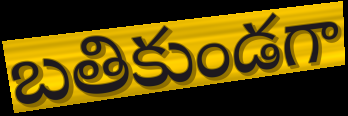
బతికుండగా